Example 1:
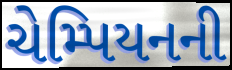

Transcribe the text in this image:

ચેમ્પિયનની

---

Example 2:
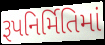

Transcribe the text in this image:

રૂપનિર્મિતિમાં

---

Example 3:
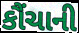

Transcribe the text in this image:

કૌંચાની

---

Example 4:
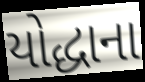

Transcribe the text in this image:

યોદ્ધાના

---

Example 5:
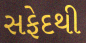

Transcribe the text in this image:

સફેદથી